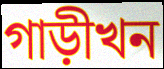
গাড়ীখন